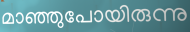
മാഞ്ഞുപോയിരുന്നു